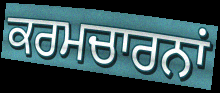
ਕਰਮਚਾਰਨਾਂ